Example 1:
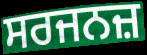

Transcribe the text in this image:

ਸਰਜਨਜ਼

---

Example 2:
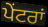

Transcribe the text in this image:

ਪੇਂਟਰਾਂ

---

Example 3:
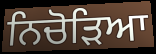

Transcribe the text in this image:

ਨਿਚੋੜਿਆ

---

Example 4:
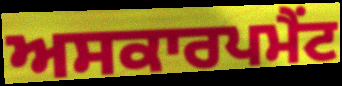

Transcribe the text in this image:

ਅਸਕਾਰਪਮੈਂਟ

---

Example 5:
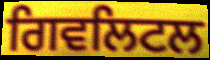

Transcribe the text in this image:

ਗਿਵਲਿਟਲ